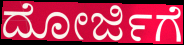
ದೋರ್ಜಿಗೆ